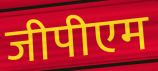
जीपीएम